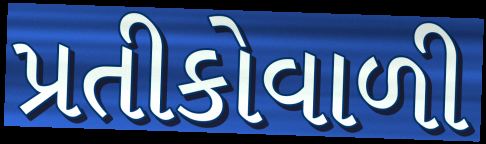
પ્રતીકોવાળી